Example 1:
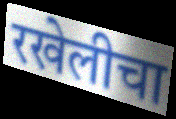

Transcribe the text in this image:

रखेलीचा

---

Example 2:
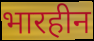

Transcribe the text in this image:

भारहीन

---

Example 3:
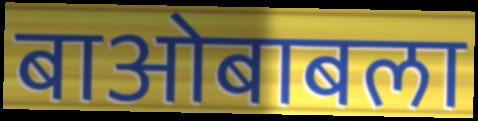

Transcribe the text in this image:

बाओबाबला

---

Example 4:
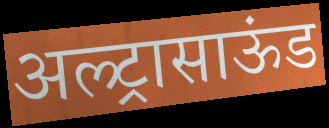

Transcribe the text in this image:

अल्ट्रासाऊंड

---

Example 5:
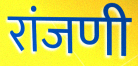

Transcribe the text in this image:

रांजणी